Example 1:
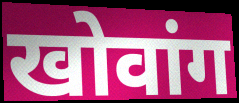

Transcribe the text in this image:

खोवांग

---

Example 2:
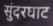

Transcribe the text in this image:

सुंदरघाट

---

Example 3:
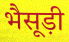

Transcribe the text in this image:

भैसूड़ी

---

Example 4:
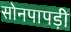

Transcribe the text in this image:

सोनपापड़ी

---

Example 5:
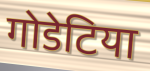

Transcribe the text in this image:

गोडेटिया